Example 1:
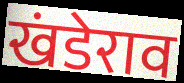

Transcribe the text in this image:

खंडेराव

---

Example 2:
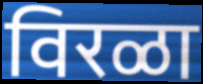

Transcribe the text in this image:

विरळा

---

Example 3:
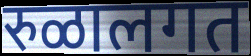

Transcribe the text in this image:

रुळालगत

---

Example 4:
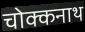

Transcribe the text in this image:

चोक्कनाथ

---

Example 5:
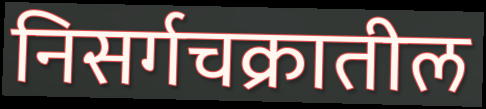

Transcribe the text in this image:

निसर्गचक्रातील